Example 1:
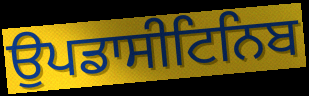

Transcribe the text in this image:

ਉਪਡਾਸੀਟਿਨਿਬ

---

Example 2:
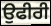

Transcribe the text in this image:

ਉਫੀਰੀ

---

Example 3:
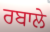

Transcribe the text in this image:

ਰਬਾਲੇ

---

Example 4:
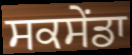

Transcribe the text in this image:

ਸਕਸੇਂਡਾ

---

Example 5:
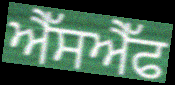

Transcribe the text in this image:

ਐੱਸਐੱਫ